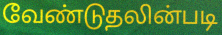
வேண்டுதலின்படி